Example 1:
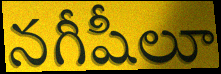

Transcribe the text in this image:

నగీషీలూ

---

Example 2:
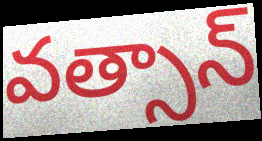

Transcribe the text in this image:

వత్సాన్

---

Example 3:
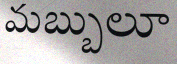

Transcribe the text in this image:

మబ్బులూ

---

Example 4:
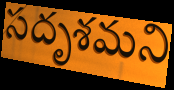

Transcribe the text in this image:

సదృశమని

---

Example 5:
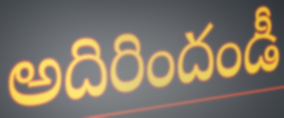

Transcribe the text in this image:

అదిరిందండీ